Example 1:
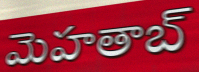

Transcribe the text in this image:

మెహతాబ్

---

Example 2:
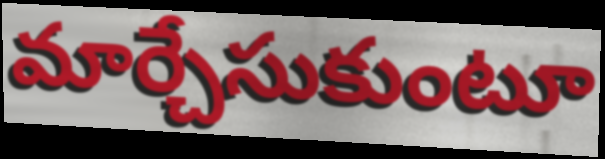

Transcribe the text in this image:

మార్చేసుకుంటూ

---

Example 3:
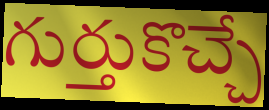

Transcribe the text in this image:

గుర్తుకొచ్చే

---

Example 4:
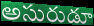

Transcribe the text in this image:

అసురుడూ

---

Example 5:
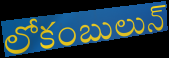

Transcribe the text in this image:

లోకంబులున్